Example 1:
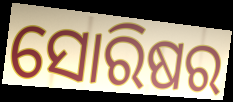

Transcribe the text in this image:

ସୋରିଷର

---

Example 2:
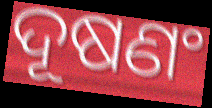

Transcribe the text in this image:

ଦୂଷଣଂ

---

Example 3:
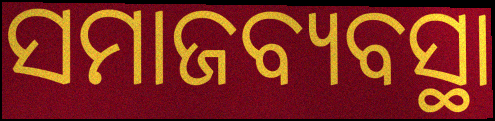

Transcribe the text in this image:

ସମାଜବ୍ୟବସ୍ଥା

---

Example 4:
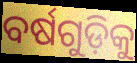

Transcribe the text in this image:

ବର୍ଷଗୁଡ଼ିକୁ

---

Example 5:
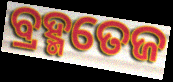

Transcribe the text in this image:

ବ୍ରହ୍ମତେଜ